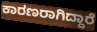
ಕಾರಣರಾಗಿದ್ದಾರೆ